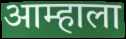
आम्हाला